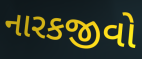
નારકજીવો